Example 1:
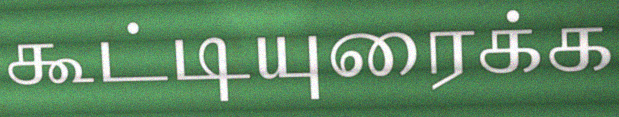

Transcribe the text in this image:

கூட்டியுரைக்க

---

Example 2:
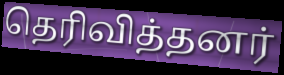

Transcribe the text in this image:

தெரிவித்தனர்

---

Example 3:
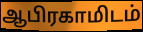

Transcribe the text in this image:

ஆபிரகாமிடம்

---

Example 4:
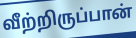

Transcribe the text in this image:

வீற்றிருப்பான்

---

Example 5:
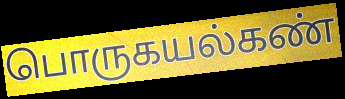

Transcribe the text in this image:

பொருகயல்கண்